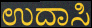
ಉದಾಸಿ